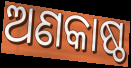
ଅଣକାଷ୍ଠ